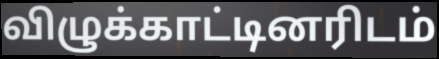
விழுக்காட்டினரிடம்